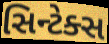
સિન્ટેક્સ